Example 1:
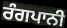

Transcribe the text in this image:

ਰੰਗਪਾਨੀ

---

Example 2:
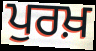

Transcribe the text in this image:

ਪੁਰਖ਼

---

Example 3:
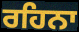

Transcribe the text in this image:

ਰਹਿਨਾ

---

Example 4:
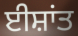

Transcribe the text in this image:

ਈਸ਼ਾਂਤ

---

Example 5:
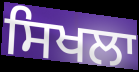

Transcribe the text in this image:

ਸਿਖਲਾ